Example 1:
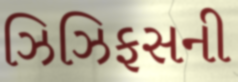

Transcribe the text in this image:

ઝિઝિફસની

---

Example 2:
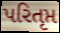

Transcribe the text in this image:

પરિતૃપ્ત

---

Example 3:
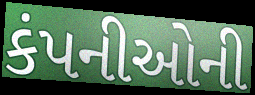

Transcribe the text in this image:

કંપનીઓની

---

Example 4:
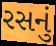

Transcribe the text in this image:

રસનું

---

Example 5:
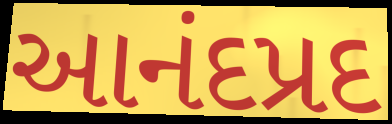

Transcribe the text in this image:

આનંદપ્રદ